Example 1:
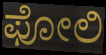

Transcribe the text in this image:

ಫೋಲಿ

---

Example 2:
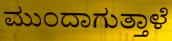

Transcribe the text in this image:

ಮುಂದಾಗುತ್ತಾಳೆ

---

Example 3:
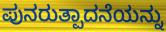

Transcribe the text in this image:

ಪುನರುತ್ಪಾದನೆಯನ್ನು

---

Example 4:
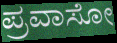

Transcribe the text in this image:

ಪ್ರವಾಸೋ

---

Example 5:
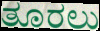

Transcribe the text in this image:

ತೂರಲು